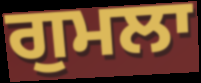
ਗੁਮਲਾ